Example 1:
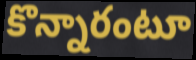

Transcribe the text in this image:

కొన్నారంటూ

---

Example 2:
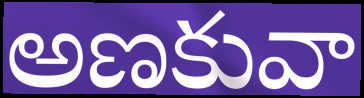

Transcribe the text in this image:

అణకువా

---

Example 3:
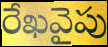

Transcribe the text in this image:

రేఖవైపు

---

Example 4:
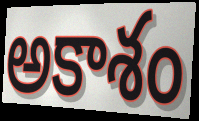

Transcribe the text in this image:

అకాశం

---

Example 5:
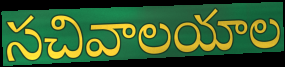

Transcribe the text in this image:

సచివాలయాల